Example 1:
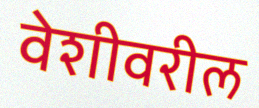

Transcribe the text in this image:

वेशीवरील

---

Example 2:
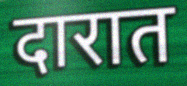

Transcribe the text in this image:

दारात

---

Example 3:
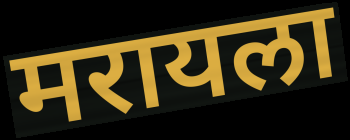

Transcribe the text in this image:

मरायला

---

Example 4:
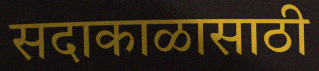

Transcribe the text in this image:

सदाकाळासाठी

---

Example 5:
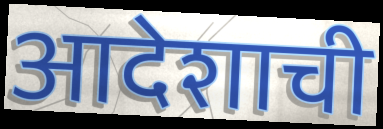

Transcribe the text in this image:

आदेशाची